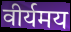
वीर्यमय